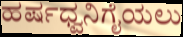
ಹರ್ಷಧ್ವನಿಗೈಯಲು